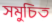
সমুচিত